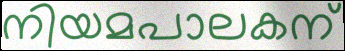
നിയമപാലകന്